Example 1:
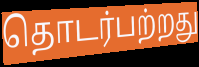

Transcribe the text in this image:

தொடர்பற்றது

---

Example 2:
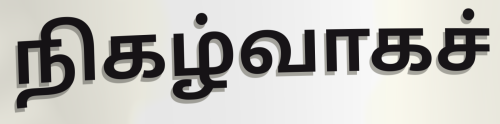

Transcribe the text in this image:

நிகழ்வாகச்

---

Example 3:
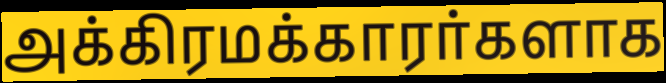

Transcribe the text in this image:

அக்கிரமக்காரர்களாக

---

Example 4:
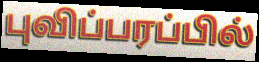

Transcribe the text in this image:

புவிப்பரப்பில்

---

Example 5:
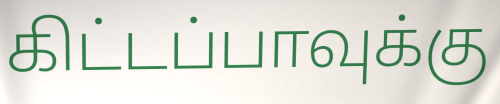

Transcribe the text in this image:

கிட்டப்பாவுக்கு